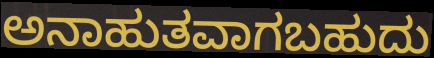
ಅನಾಹುತವಾಗಬಹುದು